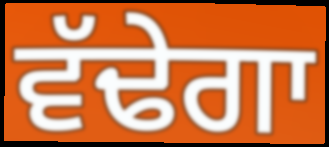
ਵੱਢੇਗਾ